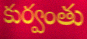
కుర్వంతు